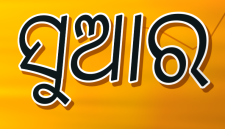
ସୁଆର